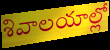
శివాలయాల్లో